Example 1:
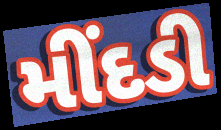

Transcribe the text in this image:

મીંદડી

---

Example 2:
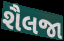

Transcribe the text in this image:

શૈલજા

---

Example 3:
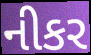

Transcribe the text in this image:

નીકર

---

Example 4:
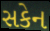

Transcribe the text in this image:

સકેન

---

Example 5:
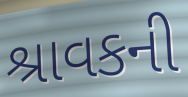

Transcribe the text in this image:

શ્રાવકની